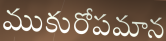
ముకురోపమాన